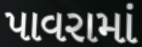
પાવરામાં